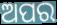
ଅପର